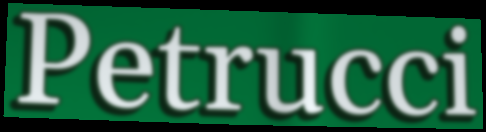
Petrucci